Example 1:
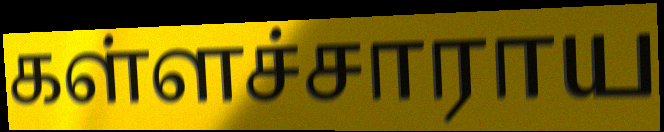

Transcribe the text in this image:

கள்ளச்சாராய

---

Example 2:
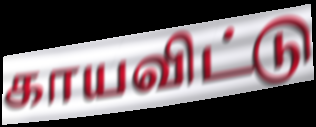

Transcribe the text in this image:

காயவிட்டு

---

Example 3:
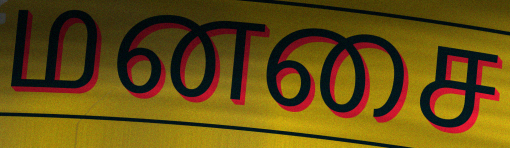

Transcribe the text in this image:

மனசை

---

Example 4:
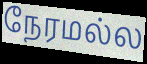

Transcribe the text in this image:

நேரமல்ல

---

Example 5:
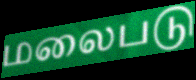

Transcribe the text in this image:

மலைபடு